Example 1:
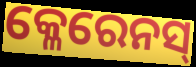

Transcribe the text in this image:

କ୍ଳେରେନସ୍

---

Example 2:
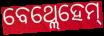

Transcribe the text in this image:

ବେଥ୍ଲେହେମ୍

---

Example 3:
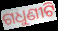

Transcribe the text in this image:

ଗଧୁଣୀଟି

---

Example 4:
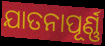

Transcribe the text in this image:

ଯାତନାପୂର୍ଣ୍ଣ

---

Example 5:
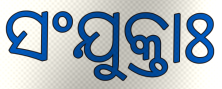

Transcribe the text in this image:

ସଂଯୁକ୍ତାଃ